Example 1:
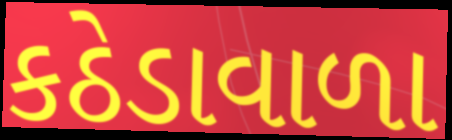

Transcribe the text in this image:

કઠેડાવાળા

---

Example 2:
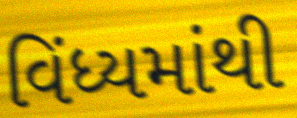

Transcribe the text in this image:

વિંધ્યમાંથી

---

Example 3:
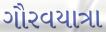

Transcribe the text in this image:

ગૌરવયાત્રા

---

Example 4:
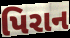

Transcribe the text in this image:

પિરાન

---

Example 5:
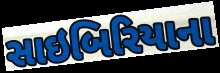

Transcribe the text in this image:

સાઇબિરિયાના